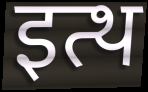
इत्थ